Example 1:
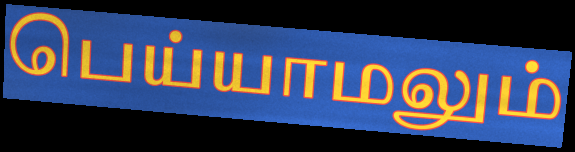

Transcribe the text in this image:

பெய்யாமலும்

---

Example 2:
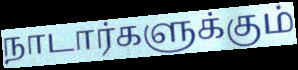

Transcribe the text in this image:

நாடார்களுக்கும்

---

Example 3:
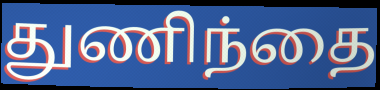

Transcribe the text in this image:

துணிந்தை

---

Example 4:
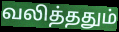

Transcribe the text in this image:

வலித்ததும்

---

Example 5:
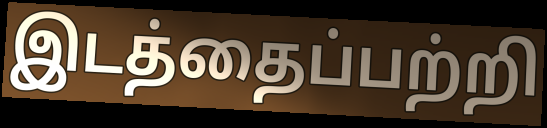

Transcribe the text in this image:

இடத்தைப்பற்றி